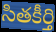
సితకీర్తి